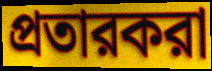
প্রতারকরা